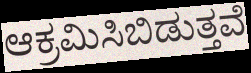
ಆಕ್ರಮಿಸಿಬಿಡುತ್ತವೆ